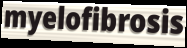
myelofibrosis